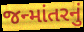
જન્માંતરનું